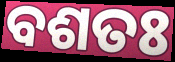
ବଶତଃ